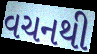
વચનથી